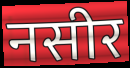
नसीर